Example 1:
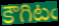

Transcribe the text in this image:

కౌగిటఁ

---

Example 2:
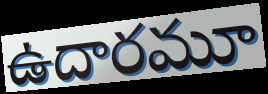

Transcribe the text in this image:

ఉదారమూ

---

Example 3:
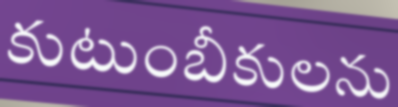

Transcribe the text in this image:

కుటుంబీకులను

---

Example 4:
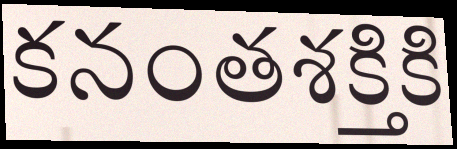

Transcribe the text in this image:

కనంతశక్తికి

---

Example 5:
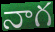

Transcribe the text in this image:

నాగ